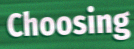
Choosing